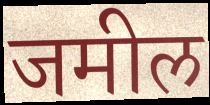
जमील